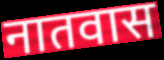
नातवास